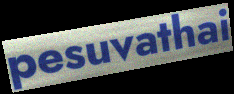
pesuvathai